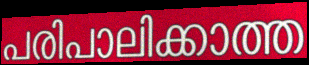
പരിപാലിക്കാത്ത